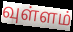
வுள்ளம்